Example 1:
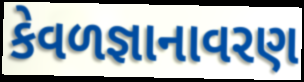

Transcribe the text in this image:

કેવળજ્ઞાનાવરણ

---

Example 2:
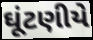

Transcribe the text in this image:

ઘૂંટણીયે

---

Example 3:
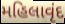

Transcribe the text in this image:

મહિલાવૃંદ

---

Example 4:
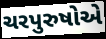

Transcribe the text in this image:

ચરપુરુષોએ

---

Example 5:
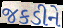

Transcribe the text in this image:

જકડીને